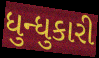
ધુન્ધુકારી